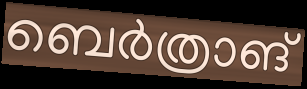
ബെർത്രാങ്